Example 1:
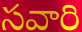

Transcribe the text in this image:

సవారి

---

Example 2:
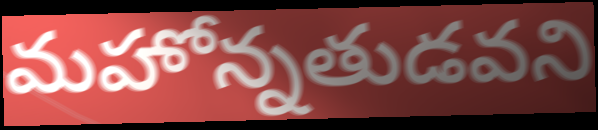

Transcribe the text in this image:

మహోన్నతుడవని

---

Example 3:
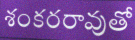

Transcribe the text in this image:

శంకరరావుతో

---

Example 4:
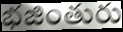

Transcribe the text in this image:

భజింతురు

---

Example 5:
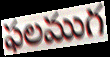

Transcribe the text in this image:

ఫలముగ